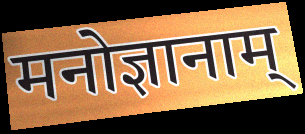
मनोज्ञानाम्